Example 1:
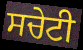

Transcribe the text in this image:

ਸਚੇਟੀ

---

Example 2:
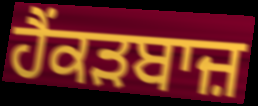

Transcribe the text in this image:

ਹੈਂਕੜਬਾਜ਼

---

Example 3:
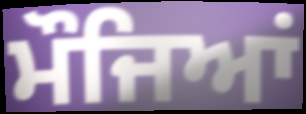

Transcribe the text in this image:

ਮੌਜਿਆਂ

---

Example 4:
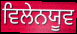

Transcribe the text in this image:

ਵਿਲੇਨਯੂਵ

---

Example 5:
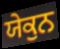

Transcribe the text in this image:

ਯੇਕੁਨ